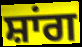
ਸ਼ਾਂਗ